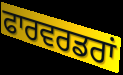
ਫਾਰਵਰਡਰਾਂ